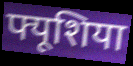
फ्यूशिया